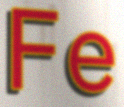
Fe